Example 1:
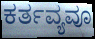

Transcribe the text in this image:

ಕರ್ತವ್ಯವೂ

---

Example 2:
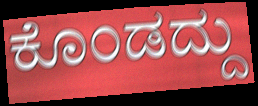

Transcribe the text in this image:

ಕೊಂಡದ್ದು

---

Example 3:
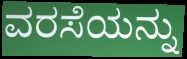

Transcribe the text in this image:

ವರಸೆಯನ್ನು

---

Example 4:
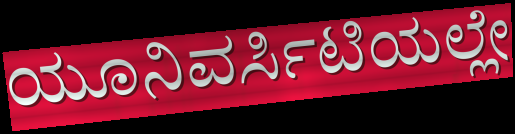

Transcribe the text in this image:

ಯೂನಿವರ್ಸಿಟಿಯಲ್ಲೇ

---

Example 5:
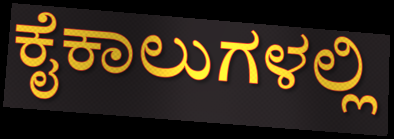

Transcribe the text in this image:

ಕೈಕಾಲುಗಳಲ್ಲಿ